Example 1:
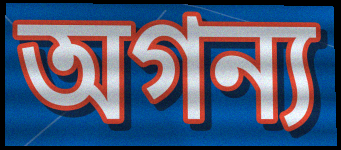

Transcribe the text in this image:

অগন্য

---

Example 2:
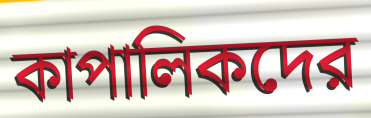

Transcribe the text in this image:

কাপালিকদের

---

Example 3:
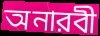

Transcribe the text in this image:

অনারবী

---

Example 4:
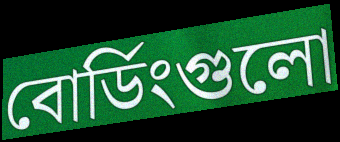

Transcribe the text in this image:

বোর্ডিংগুলো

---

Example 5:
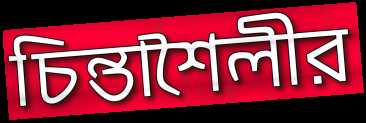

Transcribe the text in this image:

চিন্তাশৈলীর